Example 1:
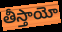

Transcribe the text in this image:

తీస్తాయో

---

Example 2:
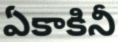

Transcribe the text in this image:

ఏకాకినీ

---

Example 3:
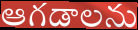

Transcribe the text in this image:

ఆగడాలను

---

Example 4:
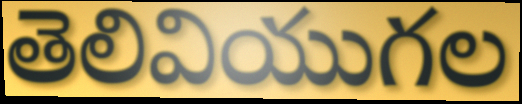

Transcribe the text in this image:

తెలివియుగల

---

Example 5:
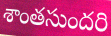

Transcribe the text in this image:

శాంతసుందరి